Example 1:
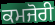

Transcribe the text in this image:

ਕਮਜੋਰੀ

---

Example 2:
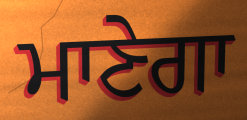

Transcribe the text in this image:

ਮਾਣੇਗਾ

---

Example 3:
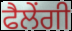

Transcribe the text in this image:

ਫੈਲੇਂਗੀ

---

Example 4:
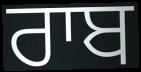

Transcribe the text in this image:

ਰਾਬ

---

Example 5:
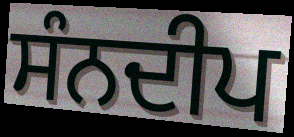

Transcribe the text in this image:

ਸੰਨਦੀਪ